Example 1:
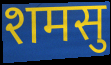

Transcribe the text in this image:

शमसु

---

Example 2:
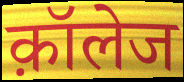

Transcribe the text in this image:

क़ॉलेज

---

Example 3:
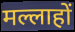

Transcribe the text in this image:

मल्लाहों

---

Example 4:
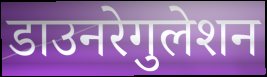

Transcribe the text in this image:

डाउनरेगुलेशन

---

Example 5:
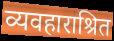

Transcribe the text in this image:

व्यवहाराश्रित